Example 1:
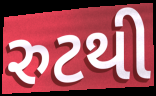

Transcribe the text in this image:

રુટથી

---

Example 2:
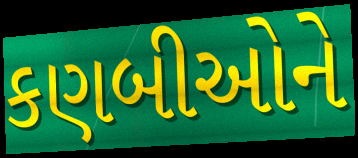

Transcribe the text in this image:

કણબીઓને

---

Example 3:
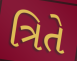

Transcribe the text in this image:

ત્રિતે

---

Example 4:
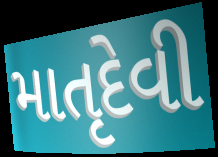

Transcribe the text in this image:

માતૃદેવી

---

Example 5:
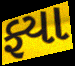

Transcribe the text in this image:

ફ્યા